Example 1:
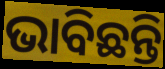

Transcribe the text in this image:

ଭାବିଛନ୍ତି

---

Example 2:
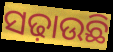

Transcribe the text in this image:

ସଢ଼ାଉଛି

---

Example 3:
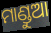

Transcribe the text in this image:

ମାଣ୍ଡୁଆ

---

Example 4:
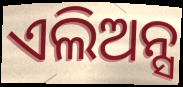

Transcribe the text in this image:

ଏଲିଅନ୍ସ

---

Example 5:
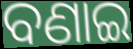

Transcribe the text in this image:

ବଣାଇ